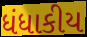
ધંધાકીય